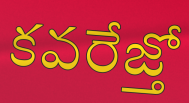
కవరేజ్తో